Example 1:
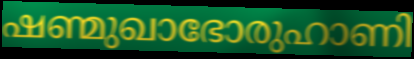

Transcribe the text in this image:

ഷണ്മുഖാഭോരുഹാണി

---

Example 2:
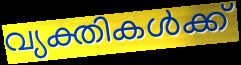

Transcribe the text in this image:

വ്യക്തികൾക്ക്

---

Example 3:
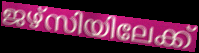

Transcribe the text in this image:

ജഴ്സിയിലേക്ക്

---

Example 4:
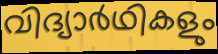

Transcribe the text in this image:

വിദ്യാർഥികളും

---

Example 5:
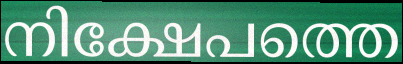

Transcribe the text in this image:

നിക്ഷേപത്തെ